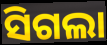
ସିଗଲା